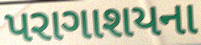
પરાગાશયના